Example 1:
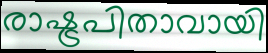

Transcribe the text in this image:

രാഷ്ട്രപിതാവായി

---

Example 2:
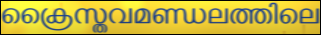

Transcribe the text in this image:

ക്രൈസ്തവമണ്ഡലത്തിലെ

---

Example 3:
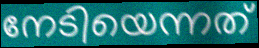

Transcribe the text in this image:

നേടിയെന്നത്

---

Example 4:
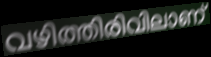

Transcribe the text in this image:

വഴിത്തിരിവിലാണ്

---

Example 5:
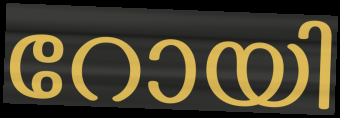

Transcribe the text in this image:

റോയി